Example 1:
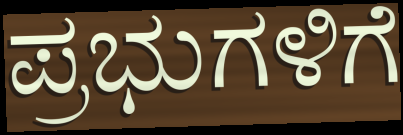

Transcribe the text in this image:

ಪ್ರಭುಗಳಿಗೆ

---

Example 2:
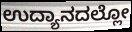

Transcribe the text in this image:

ಉದ್ಯಾನದಲ್ಲೋ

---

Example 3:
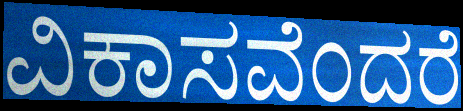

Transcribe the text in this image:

ವಿಕಾಸವೆಂದರೆ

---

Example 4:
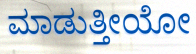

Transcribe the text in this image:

ಮಾಡುತ್ತೀಯೋ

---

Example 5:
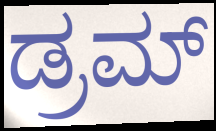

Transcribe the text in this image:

ಡ್ರಮ್